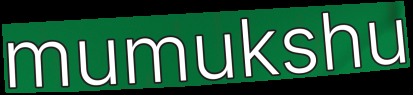
mumukshu